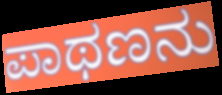
ಪಾಥಣನು